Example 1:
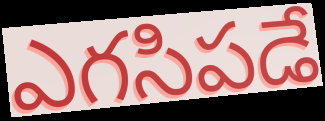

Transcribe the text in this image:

ఎగసిపడే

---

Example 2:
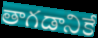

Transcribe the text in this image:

తాగడానికే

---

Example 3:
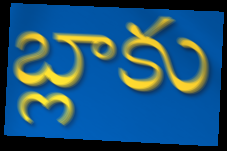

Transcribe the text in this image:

బ్లాకు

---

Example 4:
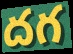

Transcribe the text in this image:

దగ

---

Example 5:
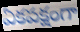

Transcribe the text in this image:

ఏకపక్షంగా